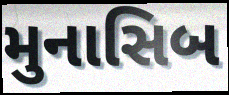
મુનાસિબ